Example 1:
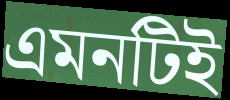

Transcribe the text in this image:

এমনটিই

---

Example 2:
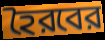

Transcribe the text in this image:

হৈরবের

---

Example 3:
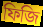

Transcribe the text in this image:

ফিজি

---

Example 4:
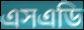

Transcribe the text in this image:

এসএডি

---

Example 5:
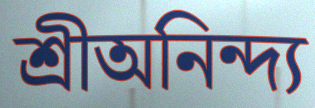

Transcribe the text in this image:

শ্রীঅনিন্দ্য